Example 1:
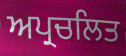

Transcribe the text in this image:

ਅਪ੍ਰਚਲਿਤ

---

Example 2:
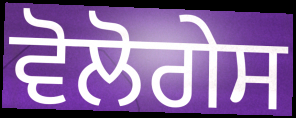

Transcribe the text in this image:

ਵੋਲੋਗੇਸ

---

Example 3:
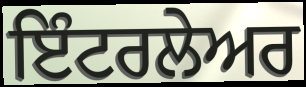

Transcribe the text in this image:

ਇੰਟਰਲੇਅਰ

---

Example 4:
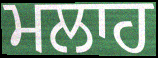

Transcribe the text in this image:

ਮਲਾਹ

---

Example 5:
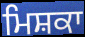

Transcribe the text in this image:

ਮਿਸ਼ਕਾ